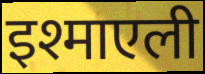
इश्माएली